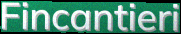
Fincantieri